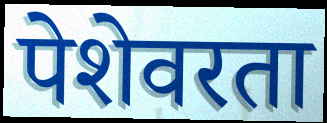
पेशेवरता